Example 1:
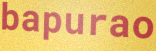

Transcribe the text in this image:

bapurao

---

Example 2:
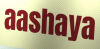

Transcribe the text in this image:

aashaya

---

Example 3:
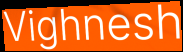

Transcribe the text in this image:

Vighnesh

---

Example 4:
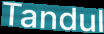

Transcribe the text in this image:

Tandul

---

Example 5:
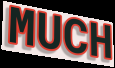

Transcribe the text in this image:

MUCH